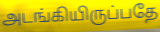
அடங்கியிருப்பதே